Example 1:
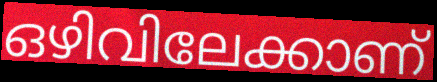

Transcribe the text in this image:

ഒഴിവിലേക്കാണ്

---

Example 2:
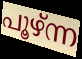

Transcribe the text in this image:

പൂഴ്ന്ന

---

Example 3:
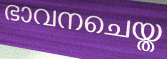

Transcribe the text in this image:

ഭാവനചെയ്ത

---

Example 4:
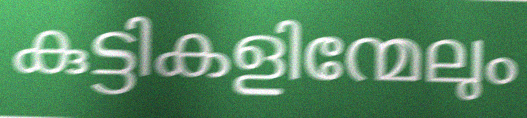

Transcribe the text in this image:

കുട്ടികളിന്മേലും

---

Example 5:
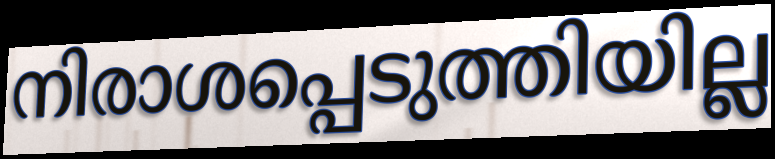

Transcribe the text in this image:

നിരാശപ്പെടുത്തിയില്ല